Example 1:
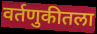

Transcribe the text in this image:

वर्तणुकीतला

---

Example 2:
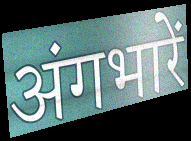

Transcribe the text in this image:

अंगभारें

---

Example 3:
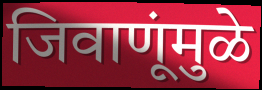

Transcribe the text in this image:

जिवाणूंमुळे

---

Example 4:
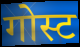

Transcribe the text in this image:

गोस्ट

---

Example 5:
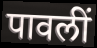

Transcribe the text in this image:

पावलीं